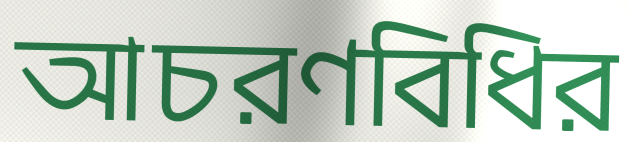
আচরণবিধির